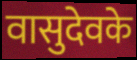
वासुदेवके